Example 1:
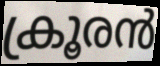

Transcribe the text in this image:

ക്രൂരൻ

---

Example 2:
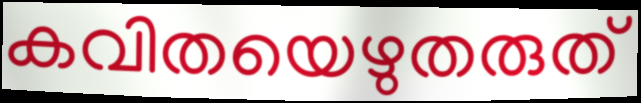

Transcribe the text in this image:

കവിതയെഴുതരുത്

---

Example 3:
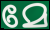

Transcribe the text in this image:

മേ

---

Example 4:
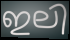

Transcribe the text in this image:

ഇലി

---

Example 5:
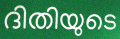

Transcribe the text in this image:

ദിതിയുടെ